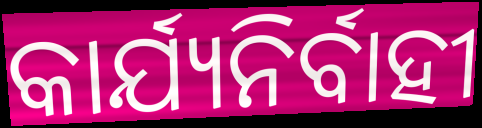
କାର୍ଯ୍ୟନିର୍ବାହୀ